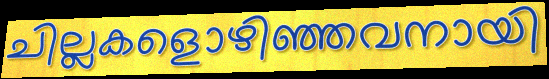
ചില്ലകളൊഴിഞ്ഞവനായി